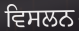
ਵਿਸਲਨ